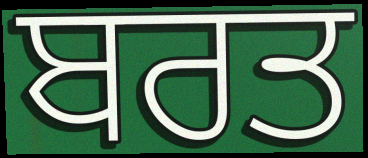
ਬਰਤ